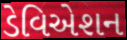
ડેવિએશન